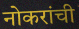
नोकरांची